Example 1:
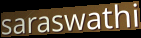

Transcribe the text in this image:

saraswathi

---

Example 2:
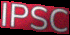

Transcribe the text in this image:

IPSC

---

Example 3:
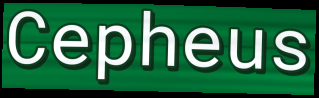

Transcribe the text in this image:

Cepheus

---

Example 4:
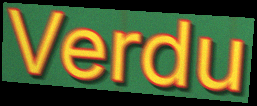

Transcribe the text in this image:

Verdu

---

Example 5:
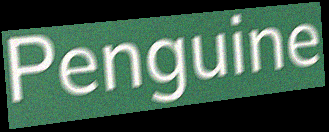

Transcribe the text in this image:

Penguine